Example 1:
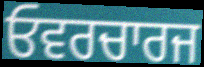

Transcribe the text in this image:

ਓਵਰਚਾਰਜ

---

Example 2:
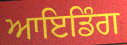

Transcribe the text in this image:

ਆਇਡਿੰਗ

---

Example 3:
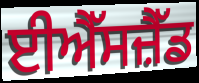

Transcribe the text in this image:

ਈਐੱਸਜ਼ੈੱਡ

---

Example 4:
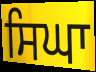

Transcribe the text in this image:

ਸਿਘਾ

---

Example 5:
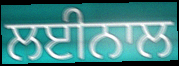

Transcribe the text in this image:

ਲਈਨਾਲ